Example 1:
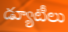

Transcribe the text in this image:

డ్యూటీలు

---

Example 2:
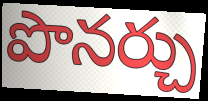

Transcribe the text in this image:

పొనర్చు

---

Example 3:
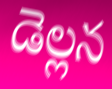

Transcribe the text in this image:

డెల్లన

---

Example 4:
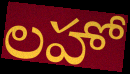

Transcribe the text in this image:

లహో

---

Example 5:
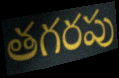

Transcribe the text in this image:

తగరపు